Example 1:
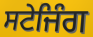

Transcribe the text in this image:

ਸਟੇਜਿੰਗ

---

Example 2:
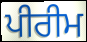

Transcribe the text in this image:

ਪੀਰੀਮ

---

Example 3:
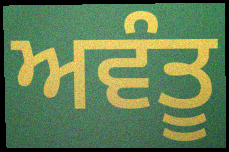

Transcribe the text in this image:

ਅਵੰਤੂ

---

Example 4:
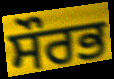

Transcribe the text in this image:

ਸੌਰਭ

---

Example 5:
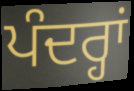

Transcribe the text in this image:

ਪੰਦਰ੍ਹਾਂ